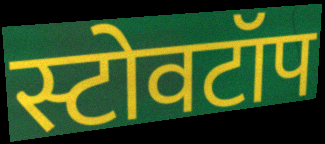
स्टोवटॉप